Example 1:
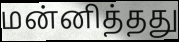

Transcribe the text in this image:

மன்னித்தது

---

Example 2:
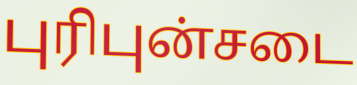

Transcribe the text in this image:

புரிபுன்சடை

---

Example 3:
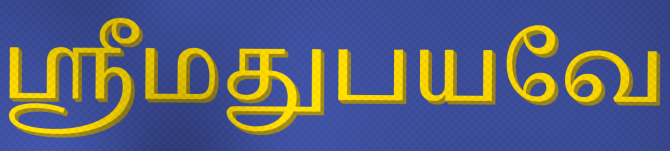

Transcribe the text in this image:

ஸ்ரீமதுபயவே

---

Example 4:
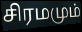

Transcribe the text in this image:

சிரமமும்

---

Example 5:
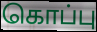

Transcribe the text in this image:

கொப்பு